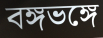
বঙ্গভঙ্গে